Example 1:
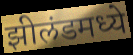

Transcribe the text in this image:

झीलंडमध्ये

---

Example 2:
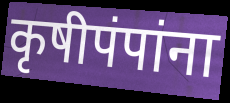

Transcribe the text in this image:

कृषीपंपांना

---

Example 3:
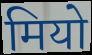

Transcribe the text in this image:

मियो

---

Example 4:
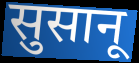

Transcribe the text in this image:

सुसानू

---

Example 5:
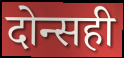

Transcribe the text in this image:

दोन्सही